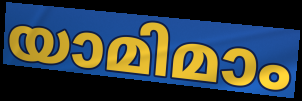
യാമിമാം